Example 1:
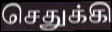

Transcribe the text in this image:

செதுக்கி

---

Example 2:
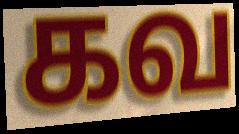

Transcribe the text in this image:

கவ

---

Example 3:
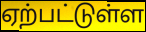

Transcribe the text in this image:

ஏற்பட்டுள்ள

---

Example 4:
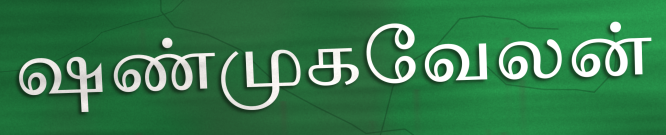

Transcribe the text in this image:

ஷண்முகவேலன்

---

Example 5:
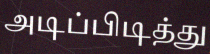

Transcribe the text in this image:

அடிப்பிடித்து